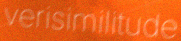
verisimilitude